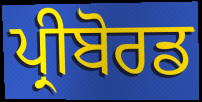
ਪ੍ਰੀਬੋਰਡ